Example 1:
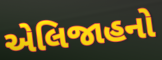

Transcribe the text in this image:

એલિજાહનો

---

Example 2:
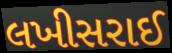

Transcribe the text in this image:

લખીસરાઈ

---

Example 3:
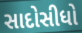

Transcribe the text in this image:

સાદોસીધો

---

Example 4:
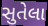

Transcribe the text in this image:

સુતેલા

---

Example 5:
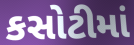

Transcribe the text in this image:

કસોટીમાં